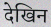
देखिन